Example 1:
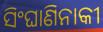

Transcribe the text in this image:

ସିଂଘାଣିନାକୀ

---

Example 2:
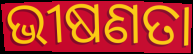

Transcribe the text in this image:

ଭୀଷଣତା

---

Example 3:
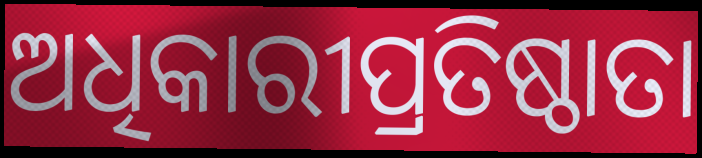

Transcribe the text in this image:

ଅଧିକାରୀପ୍ରତିଷ୍ଠାତା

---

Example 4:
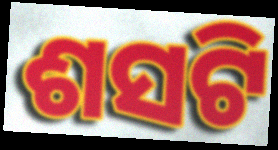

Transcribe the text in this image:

ଶସଟି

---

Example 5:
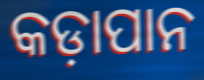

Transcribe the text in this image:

କଡ଼ାପାନ